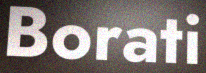
Borati